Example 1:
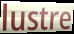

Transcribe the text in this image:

lustre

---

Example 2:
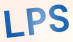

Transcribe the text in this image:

LPS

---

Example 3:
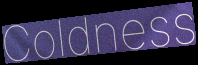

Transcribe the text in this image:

Coldness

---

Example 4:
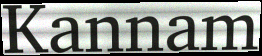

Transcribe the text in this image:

Kannam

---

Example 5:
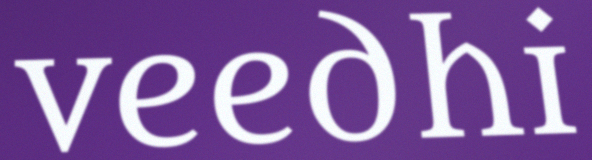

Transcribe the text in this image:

veedhi